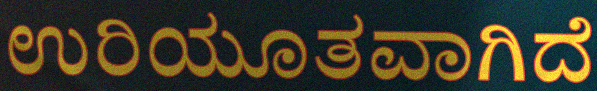
ಉರಿಯೂತವಾಗಿದೆ